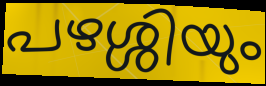
പഴശ്ശിയും